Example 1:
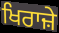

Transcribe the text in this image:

ਖਿਰਾਜ਼ੇ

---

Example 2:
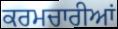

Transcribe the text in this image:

ਕਰਮਚਾਰੀਆਂ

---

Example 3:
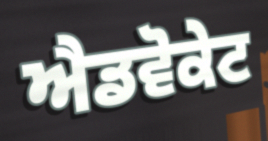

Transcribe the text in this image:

ਐਡਵੋਕੇਟ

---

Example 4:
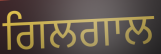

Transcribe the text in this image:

ਗਿਲਗਾਲ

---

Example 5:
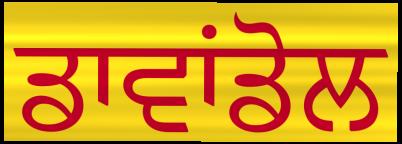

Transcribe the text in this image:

ਡਾਵਾਂਡੋਲ